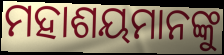
ମହାଶୟମାନଙ୍କୁ